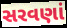
સરવણાં